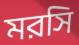
মরসি